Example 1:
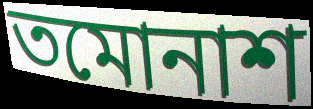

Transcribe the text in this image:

তমোনাশ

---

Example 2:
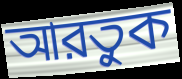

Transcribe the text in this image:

আরতুক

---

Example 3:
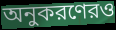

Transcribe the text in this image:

অনুকরণেরও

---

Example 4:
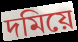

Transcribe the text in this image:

দমিয়ে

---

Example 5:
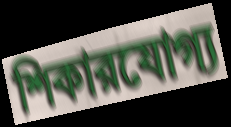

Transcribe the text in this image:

শিকারযোগ্য